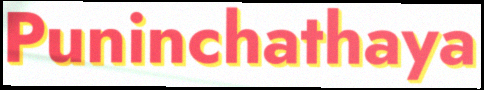
Puninchathaya